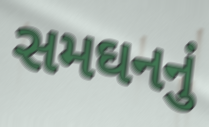
સમઘનનું